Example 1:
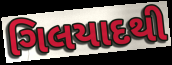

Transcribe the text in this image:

ગિલયાદથી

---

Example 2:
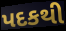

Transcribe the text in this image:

પદકથી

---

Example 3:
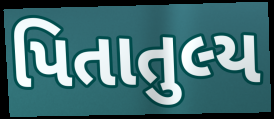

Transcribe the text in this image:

પિતાતુલ્ય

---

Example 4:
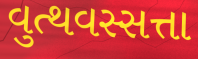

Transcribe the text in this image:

વુત્થવસ્સત્તા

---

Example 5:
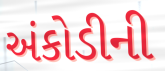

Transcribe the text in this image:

અંકોડીની